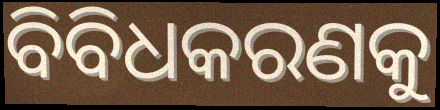
ବିବିଧକରଣକୁ